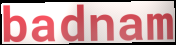
badnam